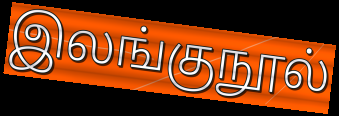
இலங்குநூல்